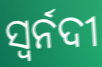
ସ୍ୱର୍ନଦୀ